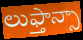
లుఫ్తాన్సా